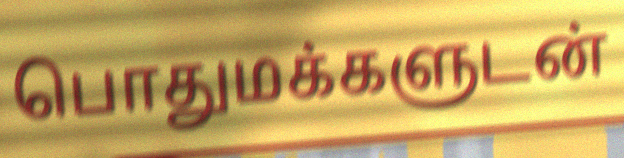
பொதுமக்களுடன்